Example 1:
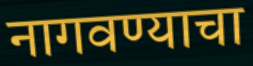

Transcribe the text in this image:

नागवण्याचा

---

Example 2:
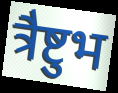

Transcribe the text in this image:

त्रैष्टुभ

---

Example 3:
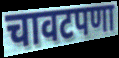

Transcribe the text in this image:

चावटपणा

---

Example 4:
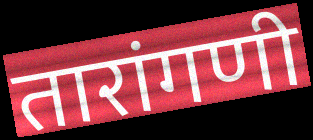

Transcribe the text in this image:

तारांगणी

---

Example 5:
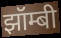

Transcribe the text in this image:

झॉम्बी